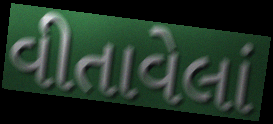
વીતાવેલાં